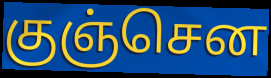
குஞ்சென